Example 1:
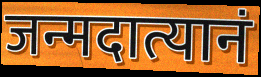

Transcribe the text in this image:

जन्मदात्यानं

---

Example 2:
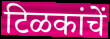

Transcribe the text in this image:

टिळकांचें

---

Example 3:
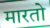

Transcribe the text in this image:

मारतो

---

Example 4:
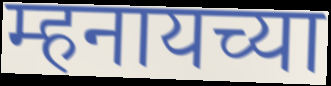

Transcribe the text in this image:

म्हनायच्या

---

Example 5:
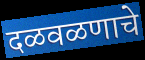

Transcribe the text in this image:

दळवळणाचे